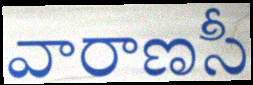
వారాణసీ